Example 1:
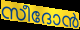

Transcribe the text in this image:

സീദോൻ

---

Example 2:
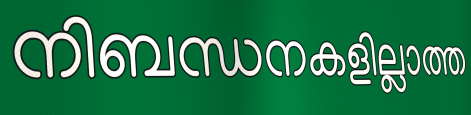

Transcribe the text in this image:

നിബന്ധനകളില്ലാത്ത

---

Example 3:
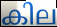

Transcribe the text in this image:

കില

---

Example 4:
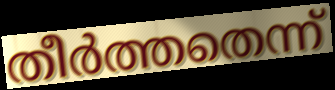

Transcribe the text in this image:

തീർത്തതെന്ന്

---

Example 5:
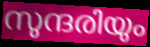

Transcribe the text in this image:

സുന്ദരിയും